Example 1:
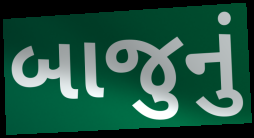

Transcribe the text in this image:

બાજુનું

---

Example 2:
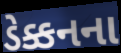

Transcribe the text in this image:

ડેક્કનના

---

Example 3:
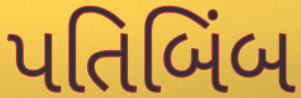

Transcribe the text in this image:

પતિબિંબ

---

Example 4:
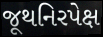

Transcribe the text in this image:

જૂથનિરપેક્ષ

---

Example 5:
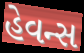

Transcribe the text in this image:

હેવન્સ